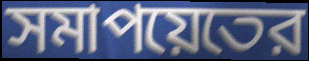
সমাপয়েতের